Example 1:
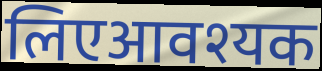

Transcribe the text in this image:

लिएआवश्यक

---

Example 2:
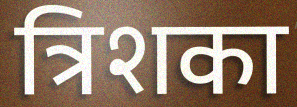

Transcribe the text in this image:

त्रिशका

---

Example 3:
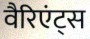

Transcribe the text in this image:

वैरिएंट्स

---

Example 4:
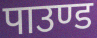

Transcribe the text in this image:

पाउण्‍ड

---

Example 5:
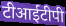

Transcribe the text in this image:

टीआईटीपी